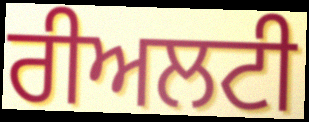
ਰੀਅਲਟੀ